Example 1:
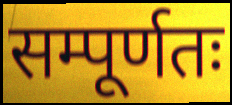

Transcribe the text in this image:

सम्पूर्णतः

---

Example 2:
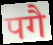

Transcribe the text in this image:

पगै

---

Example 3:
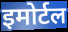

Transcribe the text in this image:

इमोर्टल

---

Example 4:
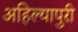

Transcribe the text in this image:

अहिल्यापुरी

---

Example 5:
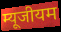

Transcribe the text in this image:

म्यूजीयम